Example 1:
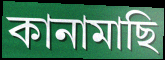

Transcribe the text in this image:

কানামাছি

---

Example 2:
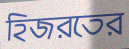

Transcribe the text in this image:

হিজরতের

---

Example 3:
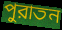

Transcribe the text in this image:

পুরাতন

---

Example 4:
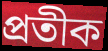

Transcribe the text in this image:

প্রতীক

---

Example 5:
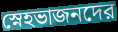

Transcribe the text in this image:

স্নেহভাজনদের